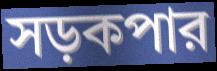
সড়কপার